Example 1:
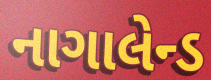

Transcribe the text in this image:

નાગાલેન્ડ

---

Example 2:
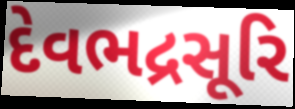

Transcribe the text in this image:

દેવભદ્રસૂરિ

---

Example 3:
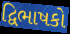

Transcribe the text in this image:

દ્વિભાષકો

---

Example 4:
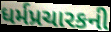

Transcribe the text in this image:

ધર્મપ્રચારકની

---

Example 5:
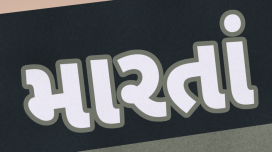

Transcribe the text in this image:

મારતાં